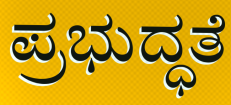
ಪ್ರಭುದ್ಧತೆ